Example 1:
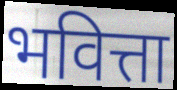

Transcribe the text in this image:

भवित्ता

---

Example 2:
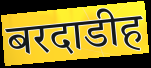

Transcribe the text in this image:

बरदाडीह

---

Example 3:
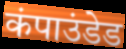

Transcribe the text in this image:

कंपाउंडेड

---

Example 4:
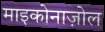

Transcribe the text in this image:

माइकोनाज़ोल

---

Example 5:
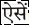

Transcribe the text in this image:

ऐसें